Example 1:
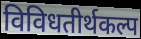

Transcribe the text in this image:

विविधतीर्थकल्प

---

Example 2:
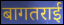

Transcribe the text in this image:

बागतराई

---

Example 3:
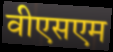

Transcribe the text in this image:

वीएसएम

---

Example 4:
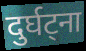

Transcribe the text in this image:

दुर्घट्ना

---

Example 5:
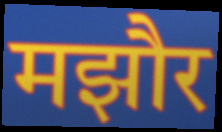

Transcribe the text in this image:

मझौर